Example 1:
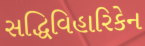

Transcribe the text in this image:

સદ્ધિવિહારિકેન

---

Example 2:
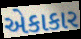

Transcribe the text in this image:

એકાકાર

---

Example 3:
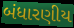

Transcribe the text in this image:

બંધારણીય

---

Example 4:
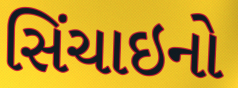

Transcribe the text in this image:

સિંચાઇનો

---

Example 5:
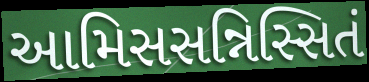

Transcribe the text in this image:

આમિસસન્નિસ્સિતં